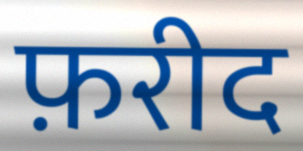
फ़रीद